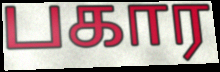
பகார